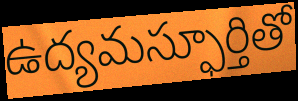
ఉద్యమస్ఫూర్తితో